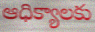
ఆధిక్యాలకు